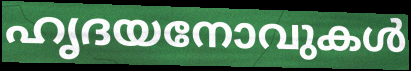
ഹൃദയനോവുകൾ